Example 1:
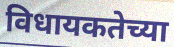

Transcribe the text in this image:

विधायकतेच्या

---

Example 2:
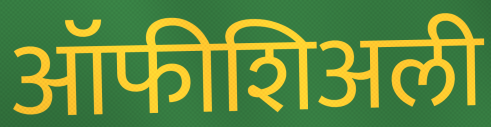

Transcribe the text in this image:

ऑफीशिअली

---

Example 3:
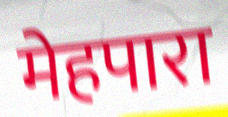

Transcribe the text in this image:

मेहपारा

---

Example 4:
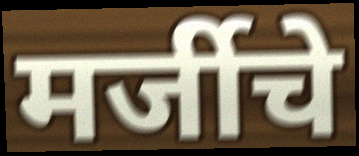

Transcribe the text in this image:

मर्जीचे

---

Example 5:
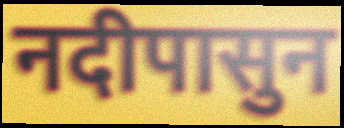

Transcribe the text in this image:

नदीपासुन